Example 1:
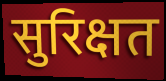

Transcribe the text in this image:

सुरिक्षत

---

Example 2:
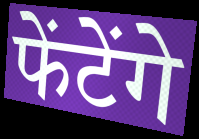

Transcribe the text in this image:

फेंटेंगे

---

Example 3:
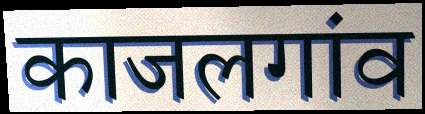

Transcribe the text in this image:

काजलगांव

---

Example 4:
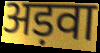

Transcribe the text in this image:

अड़वा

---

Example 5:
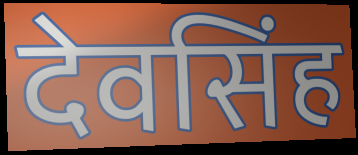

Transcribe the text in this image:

देवसिंह